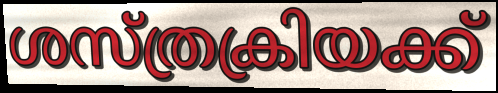
ശസ്ത്രക്രിയക്ക്